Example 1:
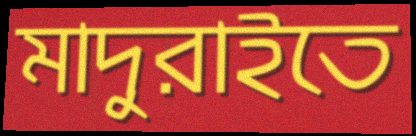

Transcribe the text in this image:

মাদুরাইতে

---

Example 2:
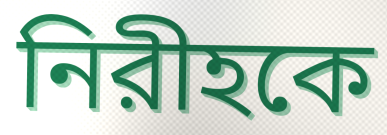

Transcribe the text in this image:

নিরীহকে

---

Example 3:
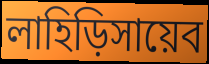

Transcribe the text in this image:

লাহিড়িসায়েব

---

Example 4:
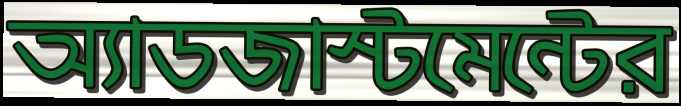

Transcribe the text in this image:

অ্যাডজাস্টমেন্টের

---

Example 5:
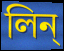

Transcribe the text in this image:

লিন্